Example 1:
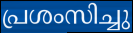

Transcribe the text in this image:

പ്രശംസിച്ചു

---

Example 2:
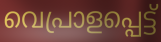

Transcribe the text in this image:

വെപ്രാളപ്പെട്ട്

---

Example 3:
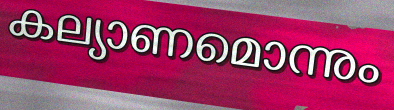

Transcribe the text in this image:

കല്യാണമൊന്നും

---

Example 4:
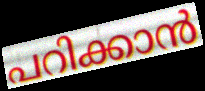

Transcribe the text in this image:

പറിക്കാൻ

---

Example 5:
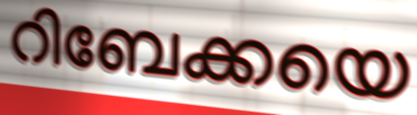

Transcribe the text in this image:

റിബേക്കയെ